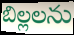
బిల్లలను